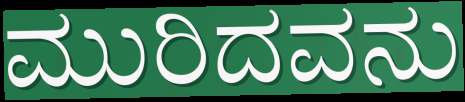
ಮುರಿದವನು